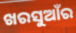
ଖରସୁଆଁର